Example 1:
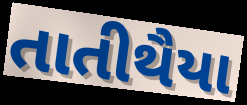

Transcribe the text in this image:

તાતીથૈયા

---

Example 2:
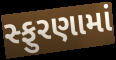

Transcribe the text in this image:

સ્ફુરણામાં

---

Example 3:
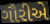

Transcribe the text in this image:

ગૌરીએ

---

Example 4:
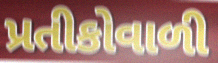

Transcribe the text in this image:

પ્રતીકોવાળી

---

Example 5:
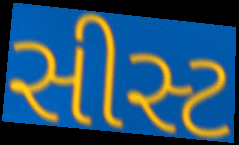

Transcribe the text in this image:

સીસ્ટ